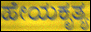
ಹೇಯಕೃತ್ಯ